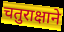
चतुराक्षाने